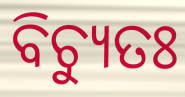
ବିଚ୍ୟୁତଃ